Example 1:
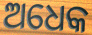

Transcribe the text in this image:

ଅଧେକ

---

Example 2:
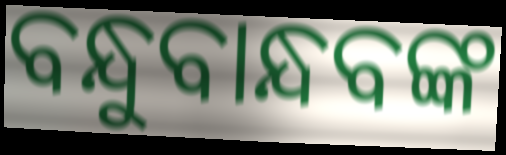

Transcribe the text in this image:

ବନ୍ଧୁବାନ୍ଧବଙ୍କ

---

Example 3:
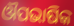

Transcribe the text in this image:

ଔପଭାଷିକ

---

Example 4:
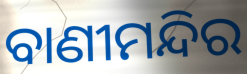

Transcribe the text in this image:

ବାଣୀମନ୍ଦିର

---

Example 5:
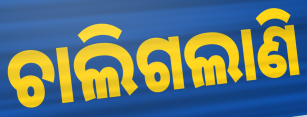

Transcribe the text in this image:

ଚାଲିଗଲାଣି